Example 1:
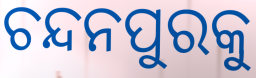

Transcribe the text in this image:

ଚନ୍ଦନପୁରକୁ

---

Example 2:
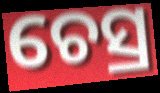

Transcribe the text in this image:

ଚେସ୍ର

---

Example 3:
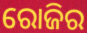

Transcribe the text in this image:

ରୋଜିର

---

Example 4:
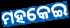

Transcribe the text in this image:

ମହକେଇ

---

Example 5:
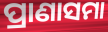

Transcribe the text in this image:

ପ୍ରାଣାସମା